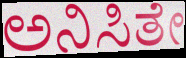
ಅನಿಸಿತೇ